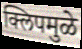
क्लिपमुळे